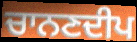
ਚਾਨਣਦੀਪ